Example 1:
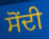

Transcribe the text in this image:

ਸੋਂਦੀ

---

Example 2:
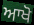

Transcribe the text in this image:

ਆਖੋ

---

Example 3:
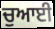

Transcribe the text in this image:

ਚੁਆਈ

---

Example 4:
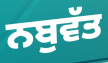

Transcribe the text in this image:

ਨਬੁਵੱਤ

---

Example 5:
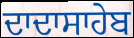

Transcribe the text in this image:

ਦਾਦਾਸਾਹੇਬ